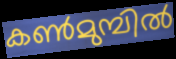
കൺമുമ്പിൽ